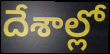
దేశాల్లో